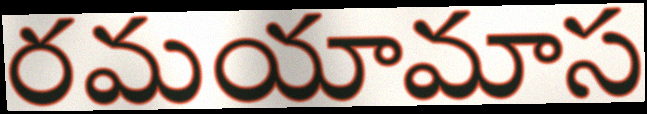
రమయామాస